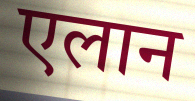
एलान